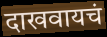
दाखवायचं